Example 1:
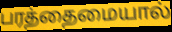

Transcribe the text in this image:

பரத்தைமையால்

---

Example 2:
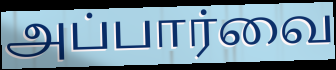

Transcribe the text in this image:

அப்பார்வை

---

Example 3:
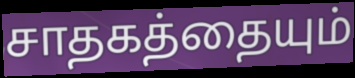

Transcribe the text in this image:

சாதகத்தையும்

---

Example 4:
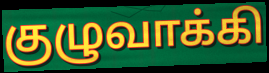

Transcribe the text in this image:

குழுவாக்கி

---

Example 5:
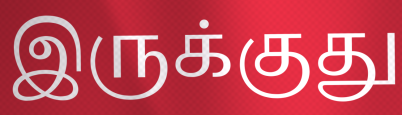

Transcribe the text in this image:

இருக்குது